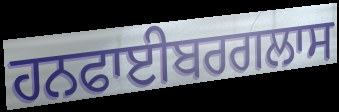
ਹਨਫਾਈਬਰਗਲਾਸ